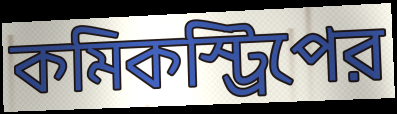
কমিকস্ট্রিপের